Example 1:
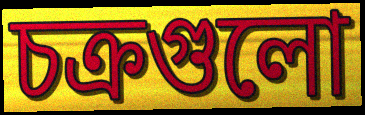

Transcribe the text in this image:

চক্রগুলো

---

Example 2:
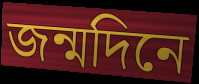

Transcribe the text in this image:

জন্মদিনে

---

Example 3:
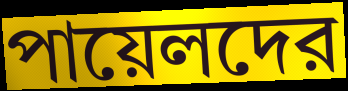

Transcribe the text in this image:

পায়েলদের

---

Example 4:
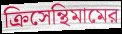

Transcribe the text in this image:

ক্রিসেন্থিমামের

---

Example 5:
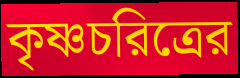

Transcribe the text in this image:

কৃষ্ণচরিত্রের